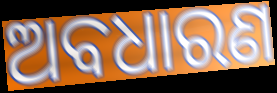
ଅବଧାରଣ